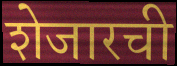
शेजारची